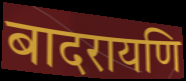
बादरायणि